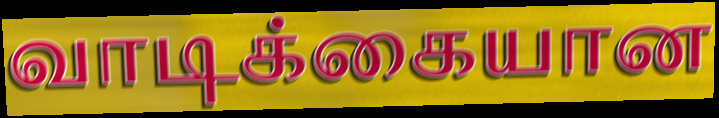
வாடிக்கையான